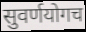
सुवर्णयोगच